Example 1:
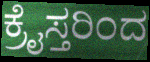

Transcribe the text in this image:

ಕ್ರೈಸ್ತರಿಂದ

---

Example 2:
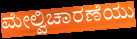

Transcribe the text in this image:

ಮೇಲ್ವಿಚಾರಣೆಯು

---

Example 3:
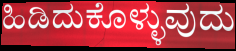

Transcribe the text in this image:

ಹಿಡಿದುಕೊಳ್ಳುವುದು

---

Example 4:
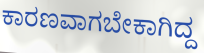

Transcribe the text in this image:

ಕಾರಣವಾಗಬೇಕಾಗಿದ್ದ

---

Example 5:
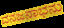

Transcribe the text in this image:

ವನಜನಾಭನು